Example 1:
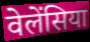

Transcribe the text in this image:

वेलेंसिया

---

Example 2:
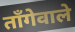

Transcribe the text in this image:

ताँगेवाले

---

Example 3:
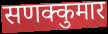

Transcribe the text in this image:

सणक्कुमार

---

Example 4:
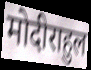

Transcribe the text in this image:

मोदीराहुल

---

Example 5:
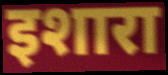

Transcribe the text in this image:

इशारा